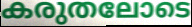
കരുതലോടെ